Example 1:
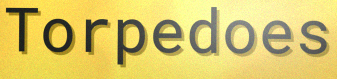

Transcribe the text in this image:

Torpedoes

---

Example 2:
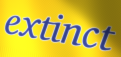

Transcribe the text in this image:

extinct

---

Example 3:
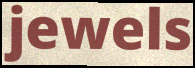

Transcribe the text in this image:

jewels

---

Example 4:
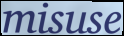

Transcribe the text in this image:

misuse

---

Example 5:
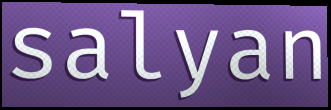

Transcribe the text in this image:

salyan